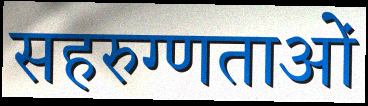
सहरुग्णताओं